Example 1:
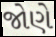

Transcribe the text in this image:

જોણે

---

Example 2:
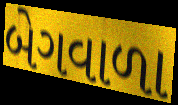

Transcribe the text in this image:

બેગવાળા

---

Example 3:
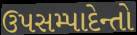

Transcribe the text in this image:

ઉપસમ્પાદેન્તો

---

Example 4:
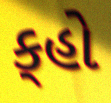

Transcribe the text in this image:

ક્‌હો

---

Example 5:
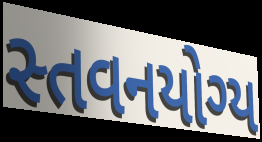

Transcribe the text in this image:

સ્તવનયોગ્ય